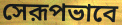
সেরূপভাবে